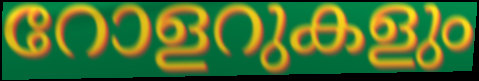
റോളറുകളും